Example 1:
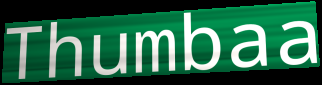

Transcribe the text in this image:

Thumbaa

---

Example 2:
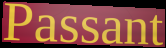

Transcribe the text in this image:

Passant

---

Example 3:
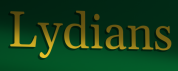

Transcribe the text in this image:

Lydians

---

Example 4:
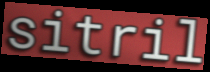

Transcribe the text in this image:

sitril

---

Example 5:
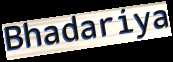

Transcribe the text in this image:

Bhadariya